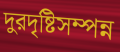
দুরদৃষ্টিসম্পন্ন